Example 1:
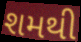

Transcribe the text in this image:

શમથી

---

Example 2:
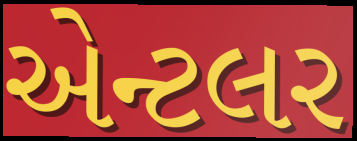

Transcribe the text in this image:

એન્ટલર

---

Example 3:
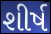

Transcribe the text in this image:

શીર્ષ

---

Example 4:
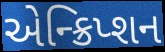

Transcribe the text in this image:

એન્ક્રિપ્શન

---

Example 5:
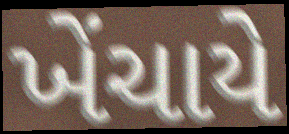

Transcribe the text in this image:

ખેંચાયે